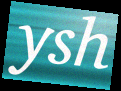
ysh